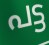
പട്ട